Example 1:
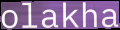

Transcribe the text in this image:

olakha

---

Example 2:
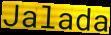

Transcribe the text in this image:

Jalada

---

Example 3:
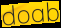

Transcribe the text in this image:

doab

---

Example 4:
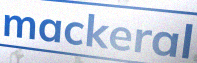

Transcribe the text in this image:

mackeral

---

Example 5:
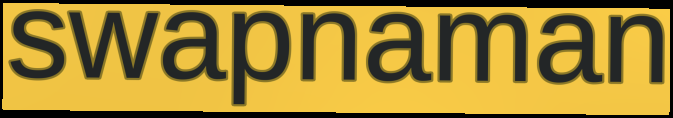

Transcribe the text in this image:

swapnaman